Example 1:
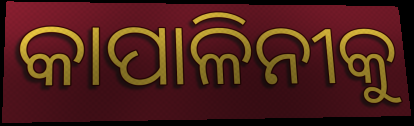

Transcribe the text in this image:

କାପାଳିନୀକୁ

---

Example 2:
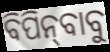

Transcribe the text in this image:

ବିପିନ୍‍ବାବୁ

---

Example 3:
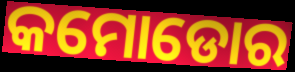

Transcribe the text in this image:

କମୋଡୋର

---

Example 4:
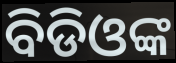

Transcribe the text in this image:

ବିଡିଓଙ୍କ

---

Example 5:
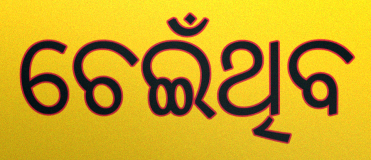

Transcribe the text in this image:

ଚେଇଁଥିବ